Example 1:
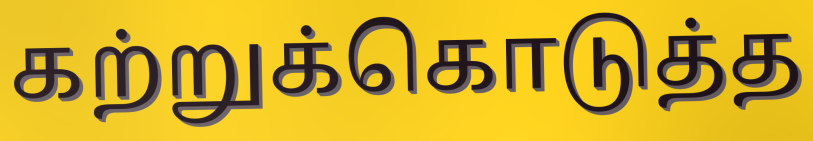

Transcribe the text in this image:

கற்றுக்கொடுத்த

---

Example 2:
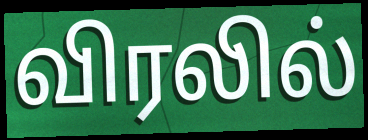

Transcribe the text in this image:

விரலில்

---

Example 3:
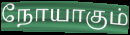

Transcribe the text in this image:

நோயாகும்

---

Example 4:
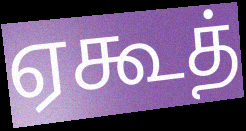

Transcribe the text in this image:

ஏகூத்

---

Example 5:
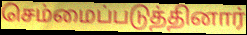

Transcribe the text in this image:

செம்மைப்படுத்தினார்